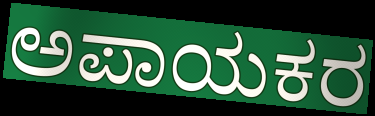
ಅಪಾಯಕರ